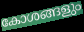
കോശങ്ങളും